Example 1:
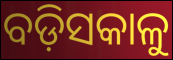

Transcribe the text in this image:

ବଡ଼ିସକାଳୁ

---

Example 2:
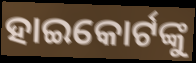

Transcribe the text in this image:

ହାଇକୋର୍ଟଙ୍କୁ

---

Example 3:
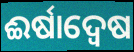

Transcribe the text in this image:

ଈର୍ଷାଦ୍ଵେଷ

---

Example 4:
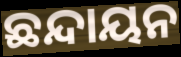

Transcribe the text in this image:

ଛନ୍ଦାୟନ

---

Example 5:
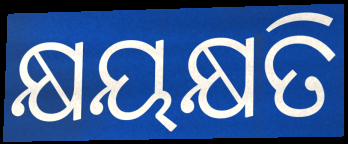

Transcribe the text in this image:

କ୍ଷୟକ୍ଷତି